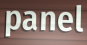
panel